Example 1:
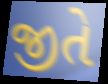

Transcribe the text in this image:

જીતે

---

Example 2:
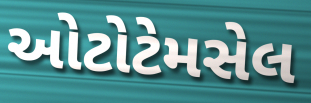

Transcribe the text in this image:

ઓટોટેમસેલ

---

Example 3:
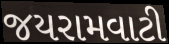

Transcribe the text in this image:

જયરામવાટી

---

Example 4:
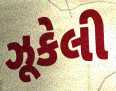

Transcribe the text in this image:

ઝૂકેલી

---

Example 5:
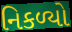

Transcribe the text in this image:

નિકળ્યો